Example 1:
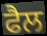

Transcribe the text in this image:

ਫੈਲ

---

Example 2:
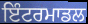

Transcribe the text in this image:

ਇੰਟਰਮਾਡਲ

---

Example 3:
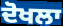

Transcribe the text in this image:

ਦੋਖਲਾ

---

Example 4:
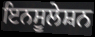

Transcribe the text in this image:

ਇਨਸੂਲੇਸ਼ਨ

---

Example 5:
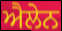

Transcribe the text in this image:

ਐਲੇਨ